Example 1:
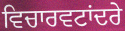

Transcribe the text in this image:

ਵਿਚਾਰਵਟਾਂਦਰੇ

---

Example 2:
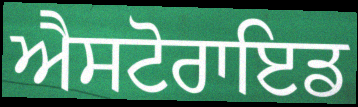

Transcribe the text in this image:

ਐਸਟੋਰਾਇਡ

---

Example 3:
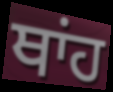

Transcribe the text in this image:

ਥਾਂਹ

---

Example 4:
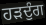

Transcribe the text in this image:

ਹੜਦੁੰਗ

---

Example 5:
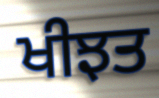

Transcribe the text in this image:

ਖੀਝਤ